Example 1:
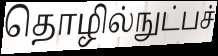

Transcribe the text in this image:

தொழில்நுட்பச்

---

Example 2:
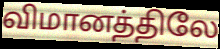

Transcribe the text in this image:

விமானத்திலே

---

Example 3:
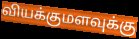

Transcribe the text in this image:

வியக்குமளவுக்கு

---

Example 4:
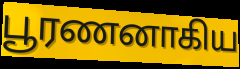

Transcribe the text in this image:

பூரணனாகிய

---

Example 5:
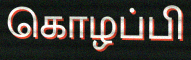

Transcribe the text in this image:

கொழப்பி